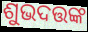
ଶୁଭଦତ୍ତଙ୍କ